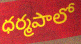
ధర్మపాలో